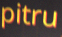
pitru